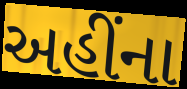
અહીંના